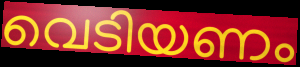
വെടിയണം